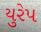
યુરેપ